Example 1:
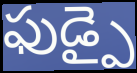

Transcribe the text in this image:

ఫుడ్పై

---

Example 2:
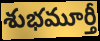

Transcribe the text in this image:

శుభమూర్తీ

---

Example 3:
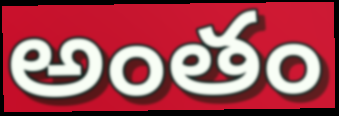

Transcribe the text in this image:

అంతం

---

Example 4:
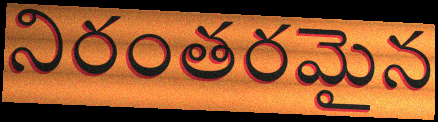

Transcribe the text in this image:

నిరంతరమైన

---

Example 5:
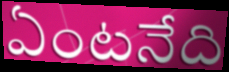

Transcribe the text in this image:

ఏంటనేది